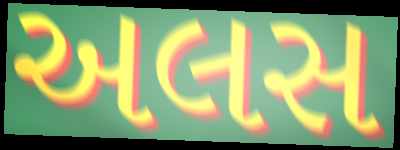
અલસ